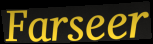
Farseer